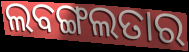
ଲବଙ୍ଗଲତାର